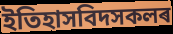
ইতিহাসবিদসকলৰ